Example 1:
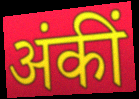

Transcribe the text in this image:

अंकीं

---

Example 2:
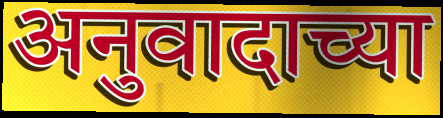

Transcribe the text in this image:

अनुवादाच्या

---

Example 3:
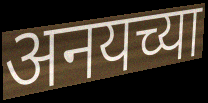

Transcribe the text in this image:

अनयच्या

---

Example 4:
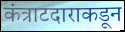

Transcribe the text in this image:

कंत्राटदाराकडून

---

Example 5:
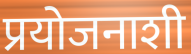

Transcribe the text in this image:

प्रयोजनाशी